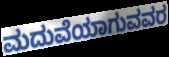
ಮದುವೆಯಾಗುವವರ